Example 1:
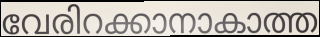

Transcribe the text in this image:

വേരിറക്കാനാകാത്ത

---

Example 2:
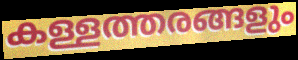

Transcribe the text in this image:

കള്ളത്തരങ്ങളും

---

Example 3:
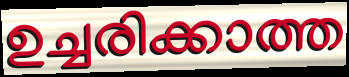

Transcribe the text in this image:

ഉച്ചരിക്കാത്ത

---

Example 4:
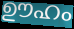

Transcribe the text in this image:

ഊഹം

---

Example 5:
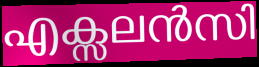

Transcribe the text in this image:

എക്സലൻസി